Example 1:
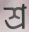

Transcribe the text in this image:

শ্র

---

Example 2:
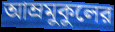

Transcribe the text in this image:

আম্রমুকুলের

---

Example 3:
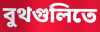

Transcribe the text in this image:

বুথগুলিতে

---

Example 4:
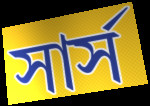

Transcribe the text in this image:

সার্স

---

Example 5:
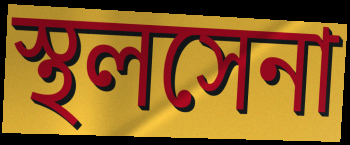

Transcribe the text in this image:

স্থলসেনা